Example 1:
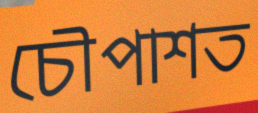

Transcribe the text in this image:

চৌপাশত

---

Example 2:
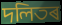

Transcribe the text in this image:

দলিতৰ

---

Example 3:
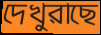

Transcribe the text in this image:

দেখুৱাছে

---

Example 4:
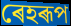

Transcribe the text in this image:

ৰেহৰূপ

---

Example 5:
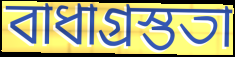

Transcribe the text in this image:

বাধাগ্ৰস্ততা